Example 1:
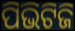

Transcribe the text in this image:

ପିଭିଟିଜି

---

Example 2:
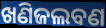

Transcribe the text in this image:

ଖଣିଜଲବଣ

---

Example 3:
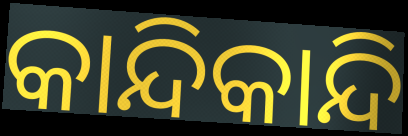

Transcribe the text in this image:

କାନ୍ଦିକାନ୍ଦି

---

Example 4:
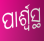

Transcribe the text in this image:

ପାର୍ଶ୍ୱସ୍ଥ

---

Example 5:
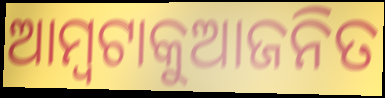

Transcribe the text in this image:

ଆମ୍ବଟାକୁଆଜନିତ